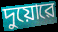
দুয়োৱে